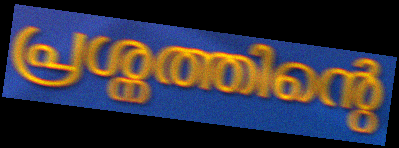
പ്രശ്നത്തിന്റെ